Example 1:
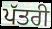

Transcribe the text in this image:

ਪੱਤਰੀ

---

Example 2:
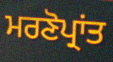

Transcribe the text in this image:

ਮਰਣੋਪ੍ਰਾਂਤ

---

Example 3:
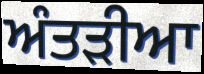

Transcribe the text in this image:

ਅੰਤੜੀਆ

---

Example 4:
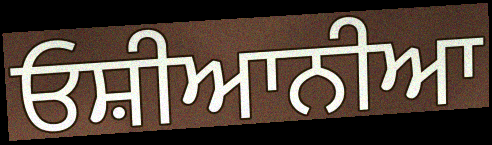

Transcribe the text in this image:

ਓਸ਼ੀਆਨੀਆ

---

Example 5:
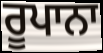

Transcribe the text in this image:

ਰੂਪਾਨਾ